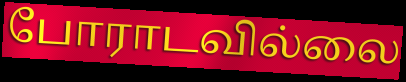
போராடவில்லை